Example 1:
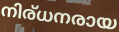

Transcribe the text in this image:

നിര്ധനരായ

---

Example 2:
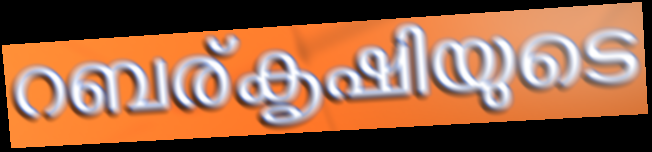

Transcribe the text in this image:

റബര്കൃഷിയുടെ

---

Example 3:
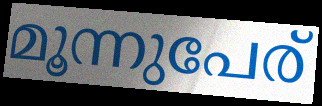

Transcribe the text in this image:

മൂന്നുപേര്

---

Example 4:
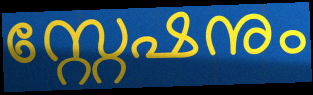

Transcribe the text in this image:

സ്റ്റേഷനും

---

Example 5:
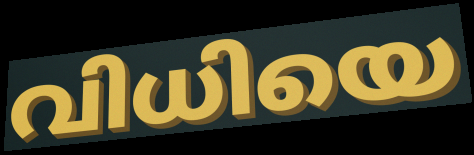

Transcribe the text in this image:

വിധിയെ